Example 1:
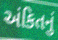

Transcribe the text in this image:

અંકિતનું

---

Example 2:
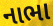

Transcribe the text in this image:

નાભા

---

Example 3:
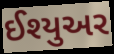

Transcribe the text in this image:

ઈશ્યુઅર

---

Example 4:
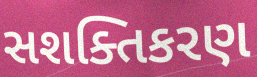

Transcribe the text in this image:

સશક્તિકરણ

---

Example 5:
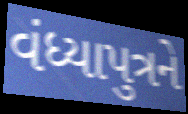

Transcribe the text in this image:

વંધ્યાપુત્રને